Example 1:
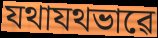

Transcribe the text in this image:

যথাযথভাৱে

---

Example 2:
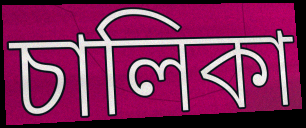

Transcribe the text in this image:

চালিকা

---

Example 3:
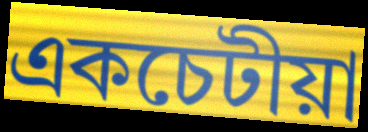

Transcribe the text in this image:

একচেটীয়া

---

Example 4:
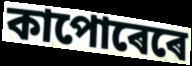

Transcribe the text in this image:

কাপোৰেৰে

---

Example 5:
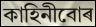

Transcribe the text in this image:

কাহিনীবোৰ